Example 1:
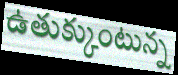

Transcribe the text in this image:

ఉతుక్కుంటున్న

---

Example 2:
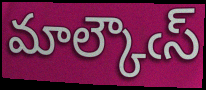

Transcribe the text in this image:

మాల్కౌఁస్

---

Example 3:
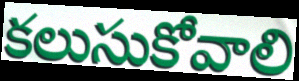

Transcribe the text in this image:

కలుసుకోవాలి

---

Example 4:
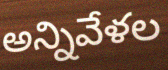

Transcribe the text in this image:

అన్నివేళల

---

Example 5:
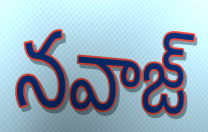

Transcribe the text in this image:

నవాజ్